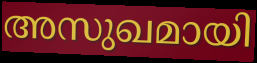
അസുഖമായി